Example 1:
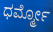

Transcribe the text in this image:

ಧರ್ಮ್ಮೋ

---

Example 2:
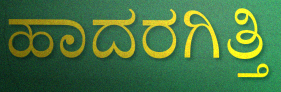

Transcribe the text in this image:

ಹಾದರಗಿತ್ತಿ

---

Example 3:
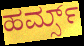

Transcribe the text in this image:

ಹರ್ಮ್ಸ್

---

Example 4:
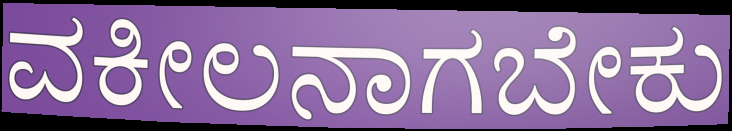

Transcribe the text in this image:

ವಕೀಲನಾಗಬೇಕು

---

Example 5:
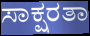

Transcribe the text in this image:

ಸಾಕ್ಷರತಾ